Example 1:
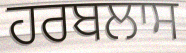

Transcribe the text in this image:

ਹਰਬਲਾਸ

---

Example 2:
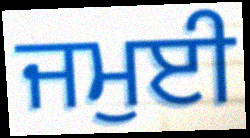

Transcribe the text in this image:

ਜਮੁਈ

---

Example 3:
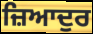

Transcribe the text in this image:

ਜ਼ਿਆਦੁਰ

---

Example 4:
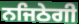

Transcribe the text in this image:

ਨਜਿਠੇਗੀ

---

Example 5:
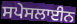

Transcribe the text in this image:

ਸਪੇਸਲਾਈਨ